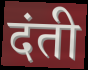
दंती